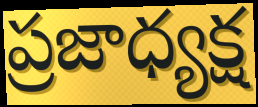
ప్రజాధ్యక్ష